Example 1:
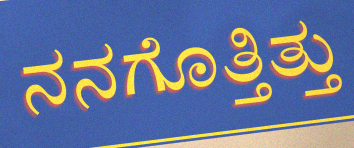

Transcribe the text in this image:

ನನಗೊತ್ತಿತ್ತು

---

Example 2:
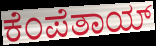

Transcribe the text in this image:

ಕೆಂಪೆತಾಯ್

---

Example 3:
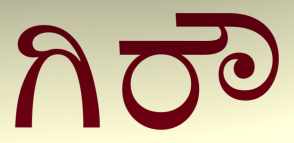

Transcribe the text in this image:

ಗಿರೌ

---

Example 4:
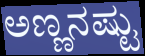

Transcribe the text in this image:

ಅಣ್ಣನಷ್ಟು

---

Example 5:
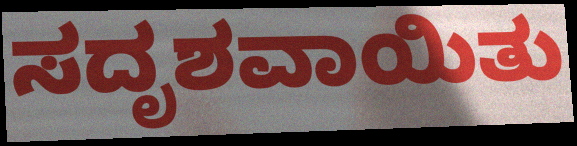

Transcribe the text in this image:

ಸದೃಶವಾಯಿತು